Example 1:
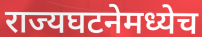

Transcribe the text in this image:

राज्यघटनेमध्येच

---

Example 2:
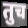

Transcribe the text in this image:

तुच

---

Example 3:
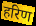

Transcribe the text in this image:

हरिण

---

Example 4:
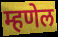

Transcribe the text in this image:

म्हणेल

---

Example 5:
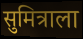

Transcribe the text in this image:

सुमित्राला